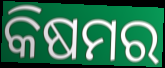
କିଷମର